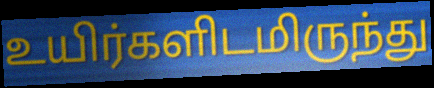
உயிர்களிடமிருந்து